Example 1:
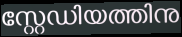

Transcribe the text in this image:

സ്റ്റേഡിയത്തിനു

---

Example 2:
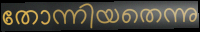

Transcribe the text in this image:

തോന്നിയതെന്നു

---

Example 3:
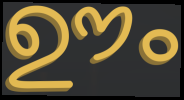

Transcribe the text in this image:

ഊം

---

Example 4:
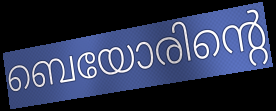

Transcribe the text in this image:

ബെയോരിന്റെ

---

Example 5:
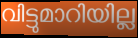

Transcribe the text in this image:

വിട്ടുമാറിയില്ല